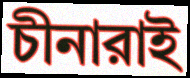
চীনারাই